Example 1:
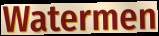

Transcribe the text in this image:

Watermen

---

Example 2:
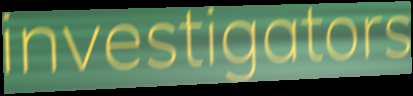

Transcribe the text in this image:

investigators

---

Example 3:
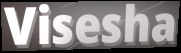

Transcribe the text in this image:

Visesha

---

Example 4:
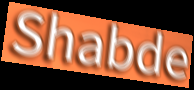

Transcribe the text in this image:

Shabde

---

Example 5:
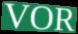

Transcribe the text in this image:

VOR